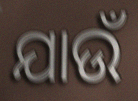
ଯାଉଁ